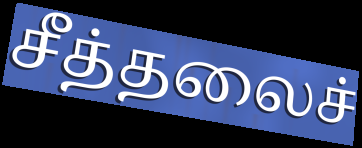
சீத்தலைச்